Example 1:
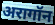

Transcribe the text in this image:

अरागॉन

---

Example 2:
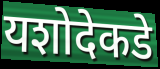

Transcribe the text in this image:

यशोदेकडे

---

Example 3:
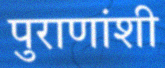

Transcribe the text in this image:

पुराणांशी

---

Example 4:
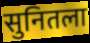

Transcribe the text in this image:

सुनितला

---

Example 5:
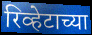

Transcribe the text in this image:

रिव्हेटाच्या